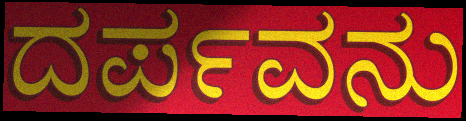
ದರ್ಪವನು